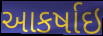
આકર્ષાઇ